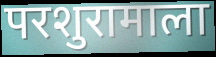
परशुरामाला